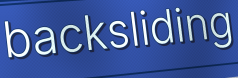
backsliding